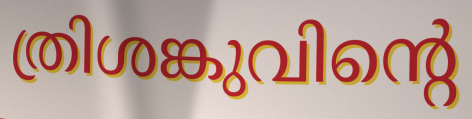
ത്രിശങ്കുവിന്റെ